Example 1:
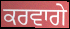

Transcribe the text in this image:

ਕਰਵਾਗੇ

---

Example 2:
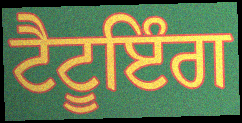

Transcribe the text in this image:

ਟੈਟੂਇੰਗ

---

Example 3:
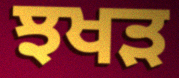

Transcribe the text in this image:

ਝਖੜ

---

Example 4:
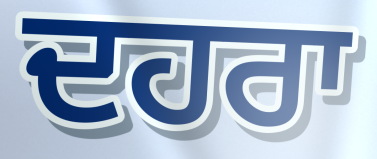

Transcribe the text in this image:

ਦਹਰਾ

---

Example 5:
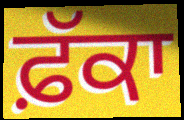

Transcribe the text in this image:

ਫ਼ੱਕਾ